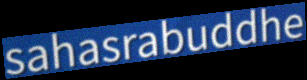
sahasrabuddhe